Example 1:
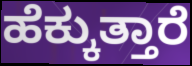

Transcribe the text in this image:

ಹೆಕ್ಕುತ್ತಾರೆ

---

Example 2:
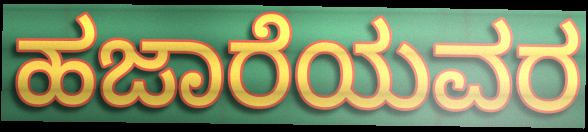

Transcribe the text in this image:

ಹಜಾರೆಯವರ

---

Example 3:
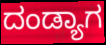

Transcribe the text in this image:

ದಂಡ್ಯಾಗ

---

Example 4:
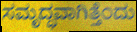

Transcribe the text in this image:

ಸಮೃದ್ಧವಾಗಿತ್ತೆಂದು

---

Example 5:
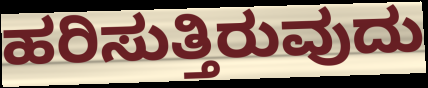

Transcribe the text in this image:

ಹರಿಸುತ್ತಿರುವುದು